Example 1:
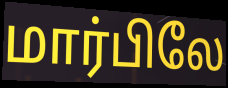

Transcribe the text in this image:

மார்பிலே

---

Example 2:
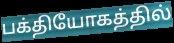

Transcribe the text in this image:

பக்தியோகத்தில்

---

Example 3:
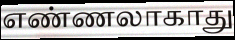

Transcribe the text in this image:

எண்ணலாகாது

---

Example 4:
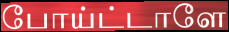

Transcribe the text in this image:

போய்ட்டாளே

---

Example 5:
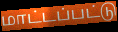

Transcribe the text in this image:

மாட்டப்பட்டு